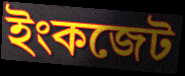
ইংকজেট